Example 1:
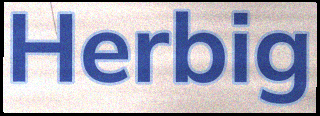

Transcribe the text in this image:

Herbig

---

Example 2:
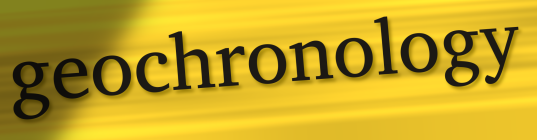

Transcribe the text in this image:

geochronology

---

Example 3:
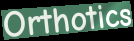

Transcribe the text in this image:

Orthotics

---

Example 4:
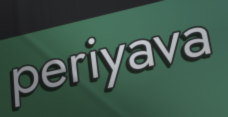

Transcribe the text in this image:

periyava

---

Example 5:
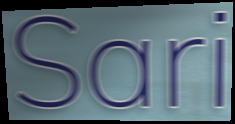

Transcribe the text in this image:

Sari